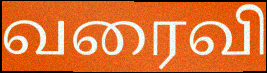
வரைவி